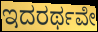
ಇದರರ್ಥವೇ